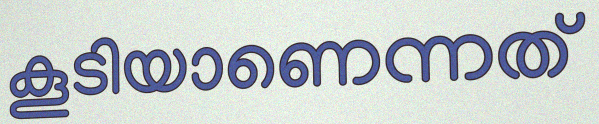
കൂടിയാണെന്നത്